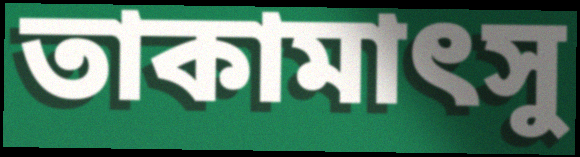
তাকামাৎসু